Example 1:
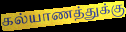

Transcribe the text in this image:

கல்யாணத்துக்கு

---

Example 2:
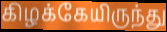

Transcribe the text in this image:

கிழக்கேயிருந்து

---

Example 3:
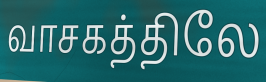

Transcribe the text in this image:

வாசகத்திலே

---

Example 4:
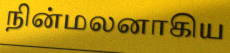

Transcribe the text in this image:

நின்மலனாகிய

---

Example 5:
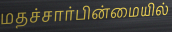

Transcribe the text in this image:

மதச்சார்பின்மையில்